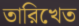
তারিখেত